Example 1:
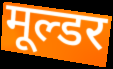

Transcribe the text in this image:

मूल्डर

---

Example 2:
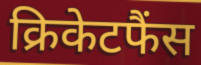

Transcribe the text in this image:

क्रिकेटफैंस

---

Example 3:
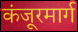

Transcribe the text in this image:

कंजूरमार्ग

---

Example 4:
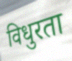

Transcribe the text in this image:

विधुरता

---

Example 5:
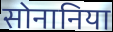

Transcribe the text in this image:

सोनानिया